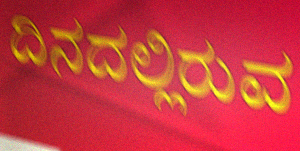
ದಿನದಲ್ಲಿರುವ